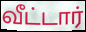
வீட்டார்